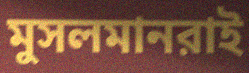
মুসলমানরাই